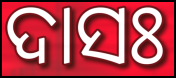
ଦାସଃ